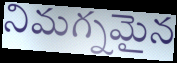
నిమగ్నమైన